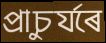
প্ৰাচুৰ্যৰে